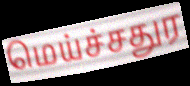
மெய்ச்சதுர